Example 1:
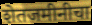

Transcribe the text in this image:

शेतजमीनीचा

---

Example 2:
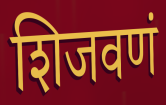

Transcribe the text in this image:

शिजवणं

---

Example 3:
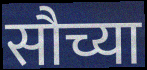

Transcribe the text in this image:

सौच्या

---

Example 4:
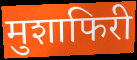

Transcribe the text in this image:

मुशाफिरी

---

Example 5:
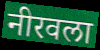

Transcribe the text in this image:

नीरवला